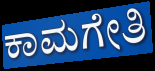
ಕಾಮಗೇತಿ